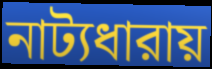
নাট্যধারায়